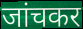
जांचकर